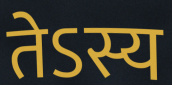
तेऽस्य